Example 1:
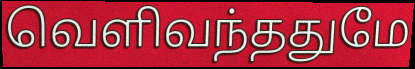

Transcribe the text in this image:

வெளிவந்ததுமே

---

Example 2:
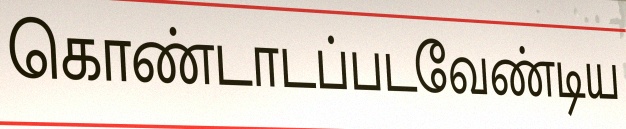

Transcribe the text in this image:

கொண்டாடப்படவேண்டிய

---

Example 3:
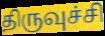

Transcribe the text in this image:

திருவுச்சி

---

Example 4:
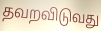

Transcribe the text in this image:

தவறவிடுவது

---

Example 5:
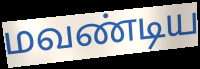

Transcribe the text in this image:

மவண்டிய